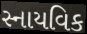
સ્નાયવિક